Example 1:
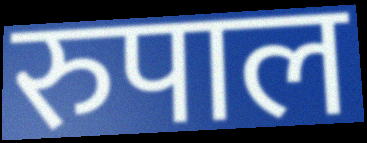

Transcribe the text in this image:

रुपाल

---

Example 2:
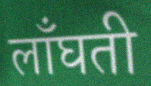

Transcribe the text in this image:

लाँघती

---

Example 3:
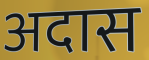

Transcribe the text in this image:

अदास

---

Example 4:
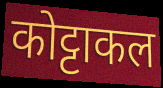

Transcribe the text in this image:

कोट्टाकल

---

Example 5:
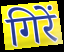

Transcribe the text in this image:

गिरें